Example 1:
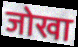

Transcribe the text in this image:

जोखा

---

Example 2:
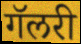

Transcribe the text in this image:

गॅलरी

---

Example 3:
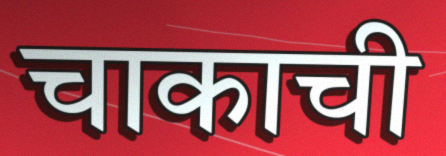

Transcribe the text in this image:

चाकाची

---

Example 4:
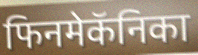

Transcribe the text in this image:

फिनमेकॅनिका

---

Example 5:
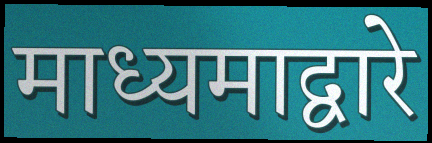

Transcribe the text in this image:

माध्यमाद्वारे